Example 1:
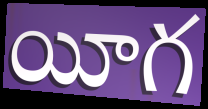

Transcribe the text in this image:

యీగ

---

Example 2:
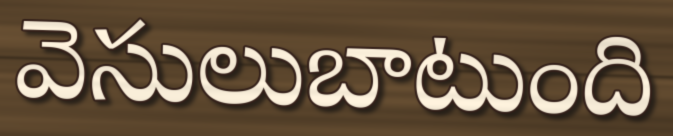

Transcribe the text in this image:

వెసులుబాటుంది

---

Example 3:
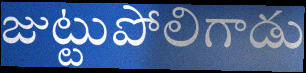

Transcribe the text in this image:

జుట్టుపోలిగాడు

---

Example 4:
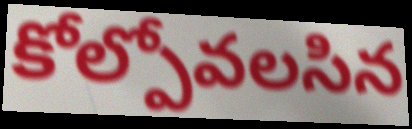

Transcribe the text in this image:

కోల్పోవలసిన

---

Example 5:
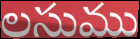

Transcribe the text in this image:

లసుము